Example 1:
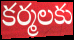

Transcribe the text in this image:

కర్మలకు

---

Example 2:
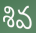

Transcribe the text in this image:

శివ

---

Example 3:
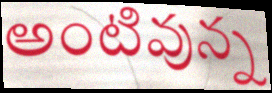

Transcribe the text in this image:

అంటివున్న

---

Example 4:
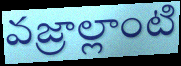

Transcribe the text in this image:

వజ్రాల్లాంటి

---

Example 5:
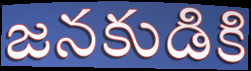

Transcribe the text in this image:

జనకుడికి